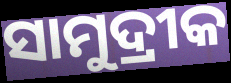
ସାମୁଦ୍ରୀକ